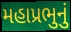
મહાપ્રભુનું